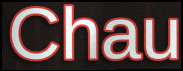
Chau